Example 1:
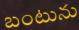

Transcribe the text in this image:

బంటును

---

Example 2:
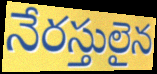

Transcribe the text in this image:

నేరస్తులైన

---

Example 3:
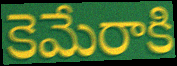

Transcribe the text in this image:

కెమేరాకి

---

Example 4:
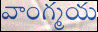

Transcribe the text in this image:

వాంగ్మయ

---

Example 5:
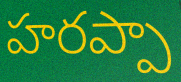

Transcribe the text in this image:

హరప్పా